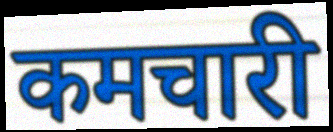
कमचारी